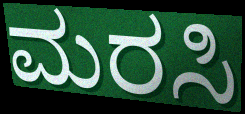
ಮರಸಿ